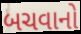
બચવાનો